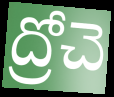
ద్రోచె